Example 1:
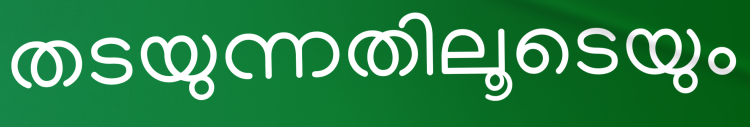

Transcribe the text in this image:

തടയുന്നതിലൂടെയും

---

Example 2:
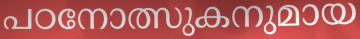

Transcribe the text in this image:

പഠനോത്സുകനുമായ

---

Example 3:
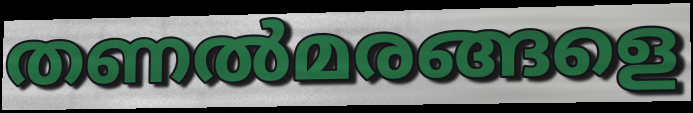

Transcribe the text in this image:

തണൽമരങ്ങളെ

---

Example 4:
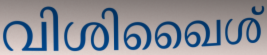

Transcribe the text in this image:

വിശിഖൈശ്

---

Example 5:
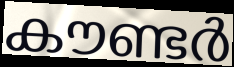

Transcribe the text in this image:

കൗണ്ടർ